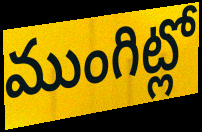
ముంగిట్లో